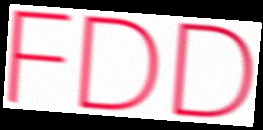
FDD